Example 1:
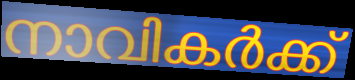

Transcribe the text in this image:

നാവികർക്ക്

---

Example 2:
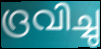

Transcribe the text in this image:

ദ്രവിച്ചു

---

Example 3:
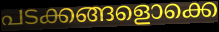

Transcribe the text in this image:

പടക്കങ്ങളൊക്കെ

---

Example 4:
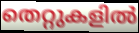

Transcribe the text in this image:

തെറ്റുകളിൽ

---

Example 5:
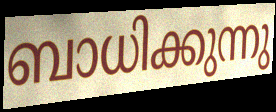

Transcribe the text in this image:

ബാധിക്കുന്നു